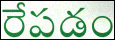
రేపడం